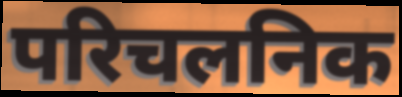
परिचलनिक